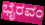
ಭೈರವಂ